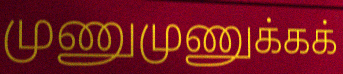
முணுமுணுக்கக்